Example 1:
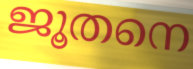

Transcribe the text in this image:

ജൂതനെ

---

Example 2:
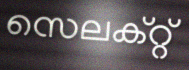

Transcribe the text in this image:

സെലക്റ്റ്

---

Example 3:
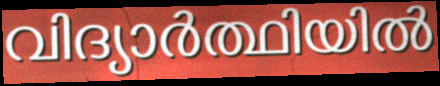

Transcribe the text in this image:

വിദ്യാർത്ഥിയിൽ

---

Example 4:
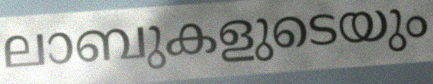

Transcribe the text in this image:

ലാബുകളുടെയും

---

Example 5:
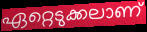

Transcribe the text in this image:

ഏറ്റെടുക്കലാണ്